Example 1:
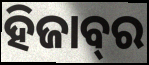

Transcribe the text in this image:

ହିଜାବ୍‌ର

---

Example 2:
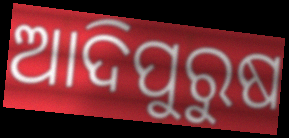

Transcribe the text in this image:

ଆଦିପୁରୁଷ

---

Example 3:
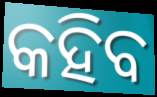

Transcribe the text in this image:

କହିବ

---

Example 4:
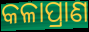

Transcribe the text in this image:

କଳାପ୍ରାଣ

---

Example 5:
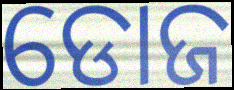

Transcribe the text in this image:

ଡୋଜ